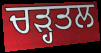
ਚੜ੍ਹਤਲ